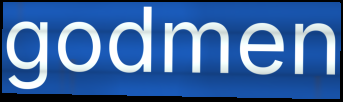
godmen